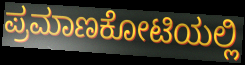
ಪ್ರಮಾಣಕೋಟಿಯಲ್ಲಿ